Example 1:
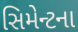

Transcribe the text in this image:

સિમેન્ટના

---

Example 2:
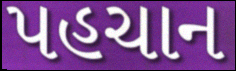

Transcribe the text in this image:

પહચાન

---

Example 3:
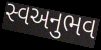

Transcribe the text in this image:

સ્વઅનુભવ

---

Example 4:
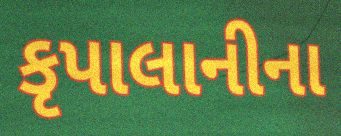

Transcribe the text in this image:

કૃપાલાનીના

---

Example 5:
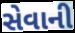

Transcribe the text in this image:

સેવાની